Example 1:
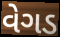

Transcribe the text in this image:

વેગડ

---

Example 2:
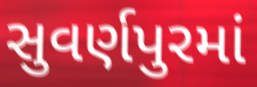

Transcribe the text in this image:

સુવર્ણપુરમાં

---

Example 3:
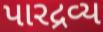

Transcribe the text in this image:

પારદ્રવ્ય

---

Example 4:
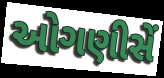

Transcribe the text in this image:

ઓગણીસેં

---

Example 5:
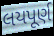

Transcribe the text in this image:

લયપૂર્ણ